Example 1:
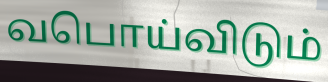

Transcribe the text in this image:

வபொய்விடும்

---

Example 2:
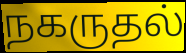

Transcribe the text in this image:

நகருதல்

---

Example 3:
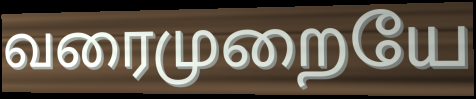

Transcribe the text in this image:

வரைமுறையே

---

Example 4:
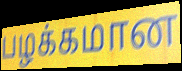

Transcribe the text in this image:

பழக்கமான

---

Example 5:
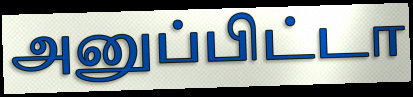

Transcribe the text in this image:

அனுப்பிட்டா